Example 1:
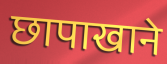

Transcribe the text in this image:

छापाखाने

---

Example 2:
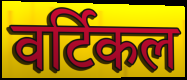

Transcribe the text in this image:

वर्टिकल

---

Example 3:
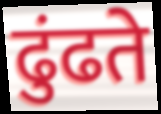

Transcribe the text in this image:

ढुंढते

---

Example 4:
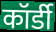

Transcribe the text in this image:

कॉर्डी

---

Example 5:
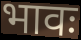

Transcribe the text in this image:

भावः